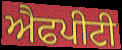
ਐਫਪੀਟੀ